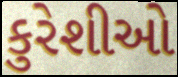
કુરેશીઓ